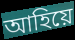
আহিয়ে